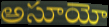
అసూయో